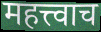
महत्त्वाच